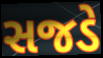
સજડે